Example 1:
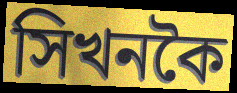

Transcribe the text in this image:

সিখনকৈ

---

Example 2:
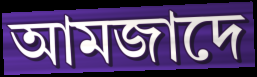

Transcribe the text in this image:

আমজাদে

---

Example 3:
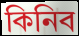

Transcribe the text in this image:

কিনিব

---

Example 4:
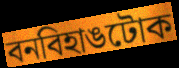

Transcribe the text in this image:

বনবিহাঙটোক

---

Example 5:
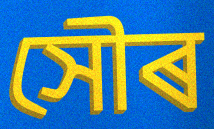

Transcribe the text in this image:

সৌৰ